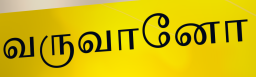
வருவானோ